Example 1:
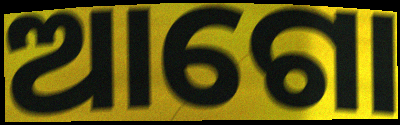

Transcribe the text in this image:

ଆଗୋ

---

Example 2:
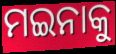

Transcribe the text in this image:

ମଇନାକୁ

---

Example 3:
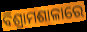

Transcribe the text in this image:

ବିଶ୍ରାମଶାଳାରେ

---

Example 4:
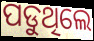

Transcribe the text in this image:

ପଡୁଥିଲେ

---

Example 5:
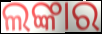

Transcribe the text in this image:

ଲଙ୍କାର